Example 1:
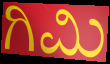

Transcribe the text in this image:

ಗಿಮಿ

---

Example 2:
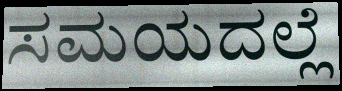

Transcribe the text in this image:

ಸಮಯದಲ್ಲೆ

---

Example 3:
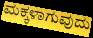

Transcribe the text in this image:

ಮಕ್ಕಳಾಗುವುದು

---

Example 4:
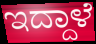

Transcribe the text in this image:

ಇದ್ದಾಳೆ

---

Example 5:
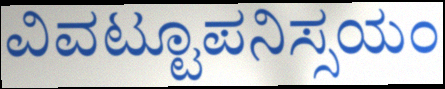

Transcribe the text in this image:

ವಿವಟ್ಟೂಪನಿಸ್ಸಯಂ